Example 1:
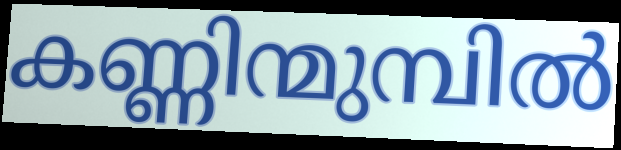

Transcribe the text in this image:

കണ്ണിന്മുമ്പിൽ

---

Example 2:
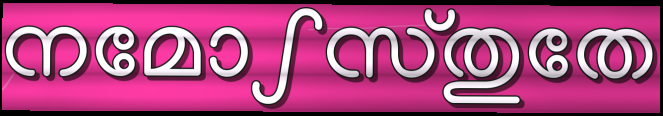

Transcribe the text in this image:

നമോഽസ്തുതേ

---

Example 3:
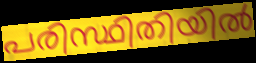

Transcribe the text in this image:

പരിസ്ഥിതിയിൽ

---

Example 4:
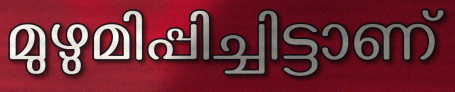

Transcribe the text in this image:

മുഴുമിപ്പിച്ചിട്ടാണ്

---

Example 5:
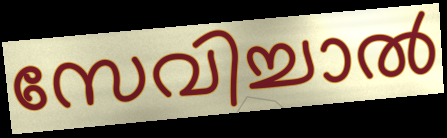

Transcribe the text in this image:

സേവിച്ചാൽ